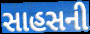
સાહસની